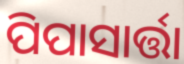
ପିପାସାର୍ତ୍ତା